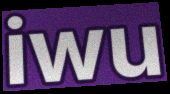
iwu